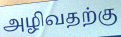
அழிவதற்கு